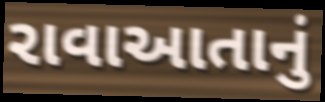
રાવાઆતાનું